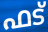
ഫട്